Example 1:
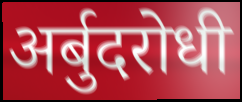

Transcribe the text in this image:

अर्बुदरोधी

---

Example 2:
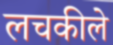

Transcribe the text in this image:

लचकीले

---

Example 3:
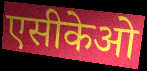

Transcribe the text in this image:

एसीकेओ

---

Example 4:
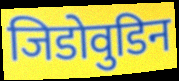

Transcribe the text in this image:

जिडोवुडिन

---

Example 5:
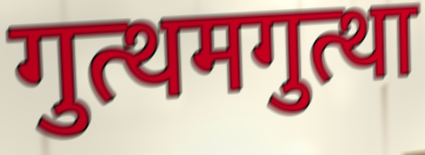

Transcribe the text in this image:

गुत्थमगुत्था